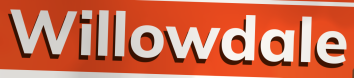
Willowdale